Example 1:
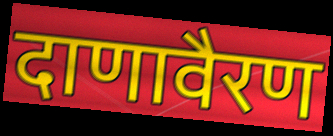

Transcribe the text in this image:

दाणावैरण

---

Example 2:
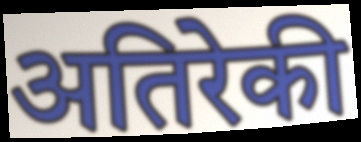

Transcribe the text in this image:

अतिरेकी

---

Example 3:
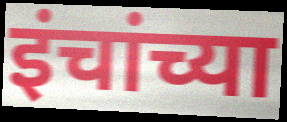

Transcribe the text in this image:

इंचांच्या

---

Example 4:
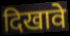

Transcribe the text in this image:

दिखावे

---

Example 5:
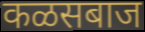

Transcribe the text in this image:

कळसबाज